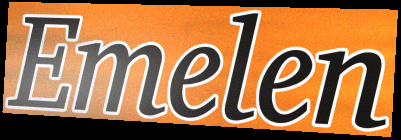
Emelen